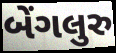
બેંગલુરુ